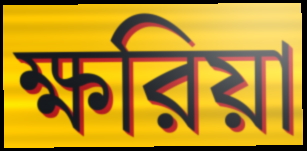
ক্ষরিয়া